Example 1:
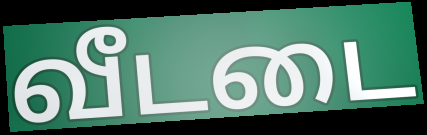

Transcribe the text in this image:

வீடடை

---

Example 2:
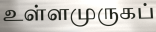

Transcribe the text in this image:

உள்ளமுருகப்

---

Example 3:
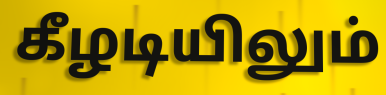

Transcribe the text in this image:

கீழடியிலும்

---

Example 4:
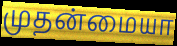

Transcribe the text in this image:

முதன்மையா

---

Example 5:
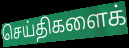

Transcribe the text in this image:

செய்திகளைக்